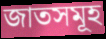
জাতসমূহ